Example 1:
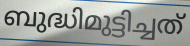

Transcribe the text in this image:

ബുദ്ധിമുട്ടിച്ചത്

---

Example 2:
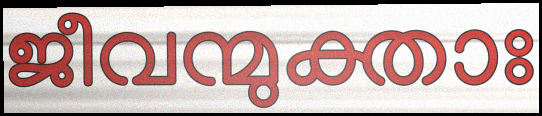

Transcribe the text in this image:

ജീവന്മുക്താഃ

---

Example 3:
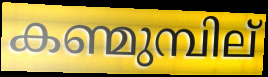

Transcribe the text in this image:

കണ്മുമ്പില്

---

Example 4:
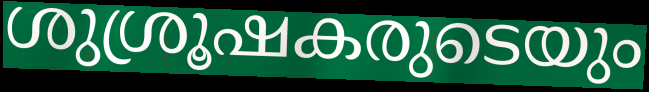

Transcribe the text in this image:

ശുശ്രൂഷകരുടെയും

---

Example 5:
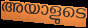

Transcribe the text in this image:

അയാളുടെ